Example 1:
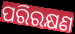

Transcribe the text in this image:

ପରିରକ୍ଷଣ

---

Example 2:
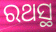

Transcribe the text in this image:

ରଥସ୍ଥ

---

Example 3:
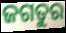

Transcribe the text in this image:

ଜଗତୁର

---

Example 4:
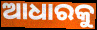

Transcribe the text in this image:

ଆଧାରକୁ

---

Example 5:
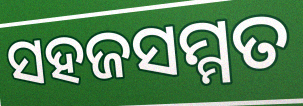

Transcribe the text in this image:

ସହଜସମ୍ମତ